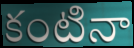
కంటినా